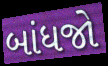
બાંધજો